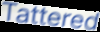
Tattered